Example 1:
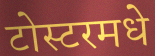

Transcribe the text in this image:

टोस्टरमधे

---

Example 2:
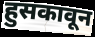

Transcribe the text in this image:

हुसकावून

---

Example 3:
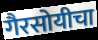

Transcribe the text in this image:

गैरसोयीचा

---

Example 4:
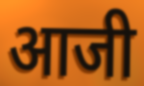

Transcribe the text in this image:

आजी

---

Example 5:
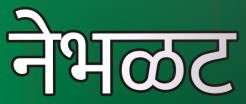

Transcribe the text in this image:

नेभळट